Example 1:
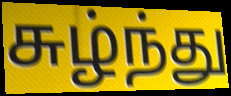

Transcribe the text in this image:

சுழ்ந்து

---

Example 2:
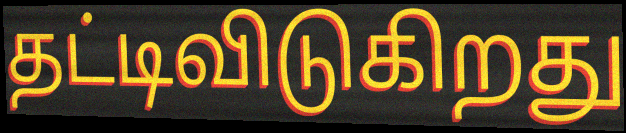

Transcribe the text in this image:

தட்டிவிடுகிறது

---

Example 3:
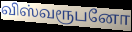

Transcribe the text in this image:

விஸ்வரூபனோ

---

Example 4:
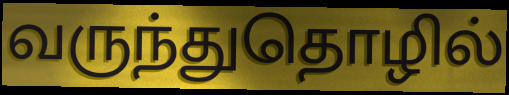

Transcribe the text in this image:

வருந்துதொழில்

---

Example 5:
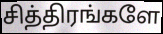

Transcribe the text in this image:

சித்திரங்களே